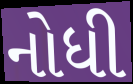
નોધી